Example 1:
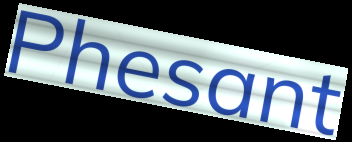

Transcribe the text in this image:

Phesant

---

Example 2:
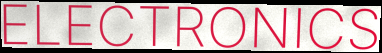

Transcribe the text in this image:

ELECTRONICS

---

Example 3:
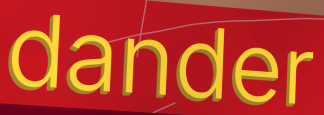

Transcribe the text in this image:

dander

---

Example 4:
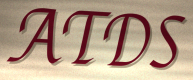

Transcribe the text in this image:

ATDS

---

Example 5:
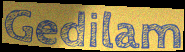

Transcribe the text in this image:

Gedilam